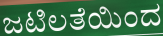
ಜಟಿಲತೆಯಿಂದ